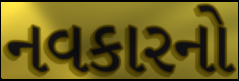
નવકારનો